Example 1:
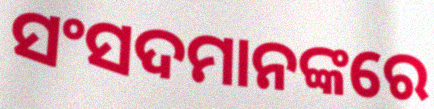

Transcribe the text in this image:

ସଂସଦମାନଙ୍କରେ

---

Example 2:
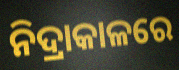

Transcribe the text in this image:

ନିଦ୍ରାକାଳରେ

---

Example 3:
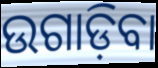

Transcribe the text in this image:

ଉଗାଡ଼ିବା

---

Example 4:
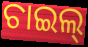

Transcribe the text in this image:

ଚାଇଲ୍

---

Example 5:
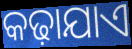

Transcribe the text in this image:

କଢ଼ାଯାଏ